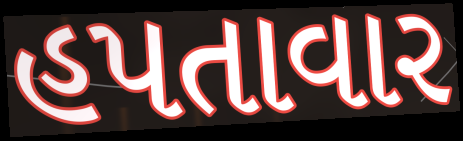
હપતાવાર